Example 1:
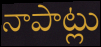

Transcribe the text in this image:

నాపాట్లు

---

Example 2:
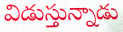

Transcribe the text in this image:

విడుస్తున్నాడు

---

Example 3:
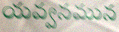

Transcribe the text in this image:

యవ్వనమున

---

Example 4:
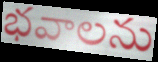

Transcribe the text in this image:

భవాలను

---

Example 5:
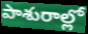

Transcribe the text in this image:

పాశురాల్లో